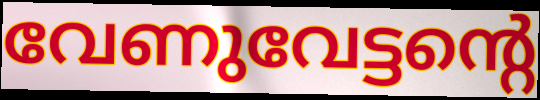
വേണുവേട്ടന്റെ